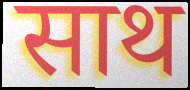
साथ